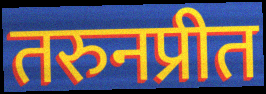
तरुनप्रीत